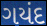
ગયંદ